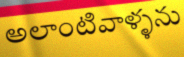
అలాంటివాళ్ళను